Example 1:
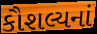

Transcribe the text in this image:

કૌશલ્યનાં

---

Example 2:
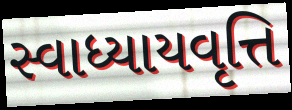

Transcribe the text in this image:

સ્વાધ્યાયવૃત્તિ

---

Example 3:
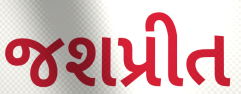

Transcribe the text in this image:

જશપ્રીત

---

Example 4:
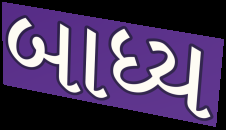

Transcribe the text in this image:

બાધ્ય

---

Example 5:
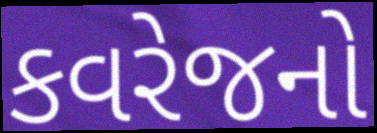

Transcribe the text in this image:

કવરેજનો